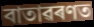
বাতাৱৰণত